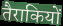
तैराकियों